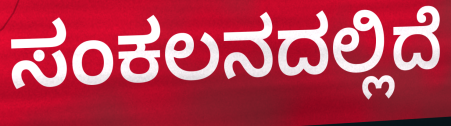
ಸಂಕಲನದಲ್ಲಿದೆ